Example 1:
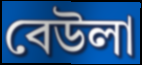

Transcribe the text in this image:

বেউলা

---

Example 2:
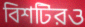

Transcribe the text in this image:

বিশটিরও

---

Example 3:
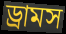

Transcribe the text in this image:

ড্রামস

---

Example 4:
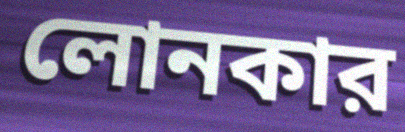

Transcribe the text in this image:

লোনকার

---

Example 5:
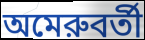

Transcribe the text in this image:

অমেরুবর্তী